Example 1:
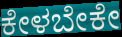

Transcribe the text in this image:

ಕೇಳಬೇಕೇ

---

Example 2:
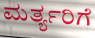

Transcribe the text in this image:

ಮರ್ತ್ಯರಿಗೆ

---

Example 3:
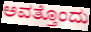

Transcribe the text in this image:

ಅವತ್ತೊಂದು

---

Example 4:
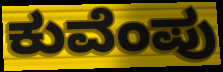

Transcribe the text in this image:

ಕುವೆಂಪು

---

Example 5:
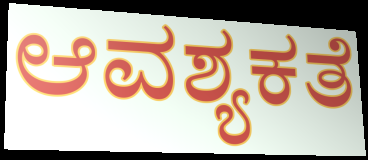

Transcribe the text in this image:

ಆವಶ್ಯಕತೆ